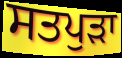
ਸਤਪੁੜਾ